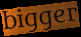
bigger